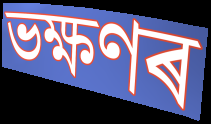
ভক্ষণৰ